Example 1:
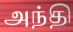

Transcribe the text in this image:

அந்தி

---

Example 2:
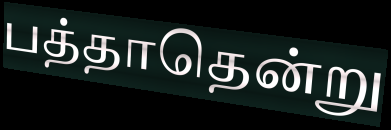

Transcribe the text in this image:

பத்தாதென்று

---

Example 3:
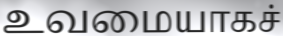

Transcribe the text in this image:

உவமையாகச்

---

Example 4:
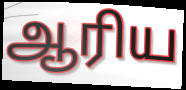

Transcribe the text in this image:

ஆரிய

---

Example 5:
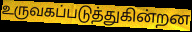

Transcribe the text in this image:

உருவகப்படுத்துகின்றன